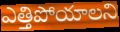
ఎత్తిపోయాలని